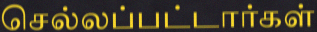
செல்லப்பட்டார்கள்